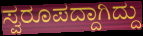
ಸ್ವರೂಪದ್ದಾಗಿದ್ದು